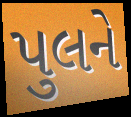
પુલને